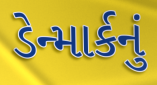
ડેન્માર્કનું